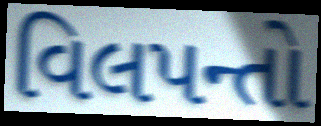
વિલપન્તો